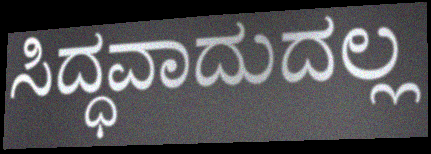
ಸಿದ್ಧವಾದುದಲ್ಲ